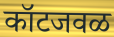
कॉटजवळ